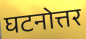
घटनोत्तर